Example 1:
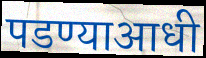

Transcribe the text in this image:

पडण्याआधी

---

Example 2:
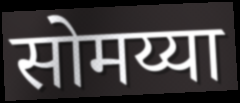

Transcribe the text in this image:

सोमय्या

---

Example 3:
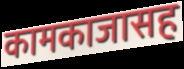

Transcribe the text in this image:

कामकाजासह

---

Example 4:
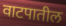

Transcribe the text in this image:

वाटपातील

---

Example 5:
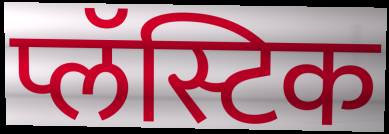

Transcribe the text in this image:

प्लॅस्टिक